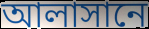
আলাসানে